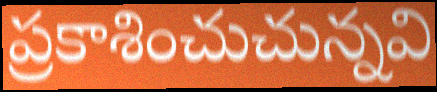
ప్రకాశించుచున్నవి